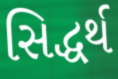
સિદ્ધર્થ